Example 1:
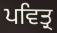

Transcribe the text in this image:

ਪਵਿਤ੍ਰ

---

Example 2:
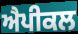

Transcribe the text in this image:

ਐਪੀਕਲ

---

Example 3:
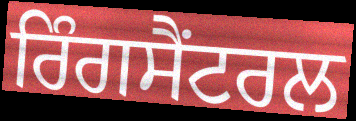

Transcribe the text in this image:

ਰਿੰਗਸੈਂਟਰਲ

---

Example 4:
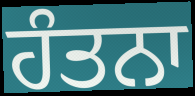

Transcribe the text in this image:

ਹੰਤਨਾ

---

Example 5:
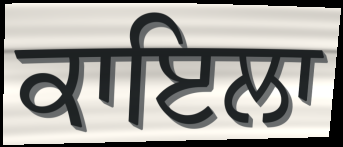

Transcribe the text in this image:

ਕਾਇਲਾ